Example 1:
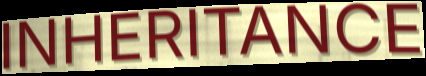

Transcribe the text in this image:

INHERITANCE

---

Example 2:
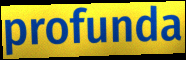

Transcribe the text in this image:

profunda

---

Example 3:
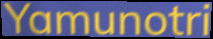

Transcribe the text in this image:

Yamunotri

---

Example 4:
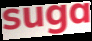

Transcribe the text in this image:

suga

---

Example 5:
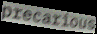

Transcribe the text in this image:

precarious